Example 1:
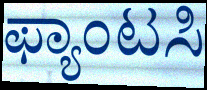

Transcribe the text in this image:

ಫ್ಯಾಂಟಸಿ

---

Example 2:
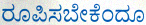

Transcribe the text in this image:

ರೂಪಿಸಬೇಕೆಂದೂ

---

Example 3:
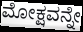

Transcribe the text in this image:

ಮೋಕ್ಷವನ್ನೇ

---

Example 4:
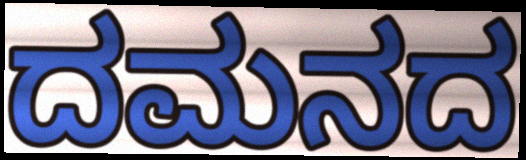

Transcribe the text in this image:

ದಮನದ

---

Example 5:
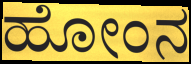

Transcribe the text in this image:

ಹೋಂನ